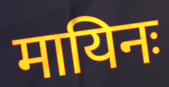
मायिनः